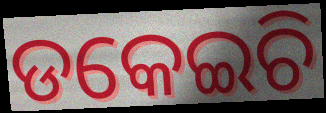
ଡକେଇଚି